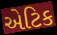
એટિક